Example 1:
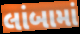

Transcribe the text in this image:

લાંબામાં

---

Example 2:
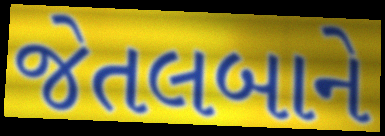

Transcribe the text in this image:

જેતલબાને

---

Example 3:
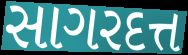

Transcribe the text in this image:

સાગરદત્ત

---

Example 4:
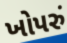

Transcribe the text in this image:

ખોપરું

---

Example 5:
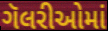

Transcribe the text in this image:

ગૅલરીઓમાં